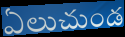
ఏలుచుండ